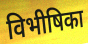
विभीषिका